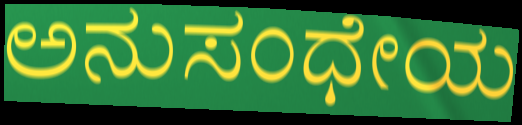
ಅನುಸಂಧೇಯ